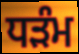
ਧੜੰਮ